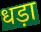
धड़ा